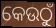
କେଉଠୁଁ